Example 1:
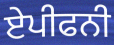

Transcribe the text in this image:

ਏਪੀਫਨੀ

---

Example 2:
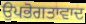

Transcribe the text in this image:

ਉਪਭੋਗਤਾਵਾਦ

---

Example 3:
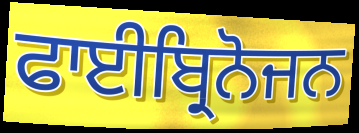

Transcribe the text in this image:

ਫਾਈਬ੍ਰਿਨੋਜਨ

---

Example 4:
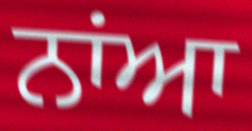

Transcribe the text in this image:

ਨਾਂਆ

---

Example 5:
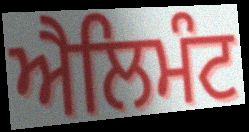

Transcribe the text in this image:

ਐਲਿਮੰਟ